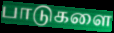
பாடுகளை